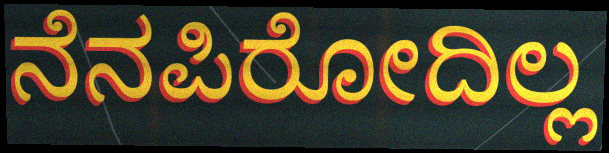
ನೆನಪಿರೋದಿಲ್ಲ